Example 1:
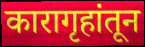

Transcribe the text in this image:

कारागृहांतून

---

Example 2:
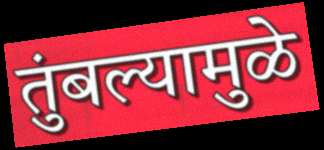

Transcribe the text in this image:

तुंबल्यामुळे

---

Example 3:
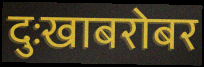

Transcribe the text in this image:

दुःखाबरोबर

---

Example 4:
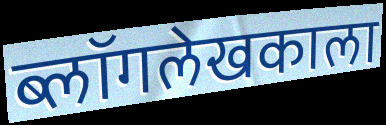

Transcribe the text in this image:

ब्लॉगलेखकाला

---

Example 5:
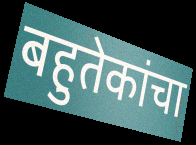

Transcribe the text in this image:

बहुतेकांचा